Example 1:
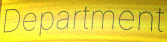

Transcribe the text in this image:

Department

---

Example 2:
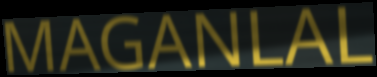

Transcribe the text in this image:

MAGANLAL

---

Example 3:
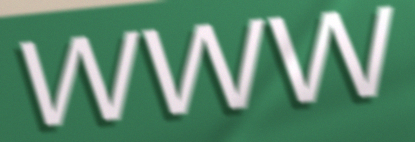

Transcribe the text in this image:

www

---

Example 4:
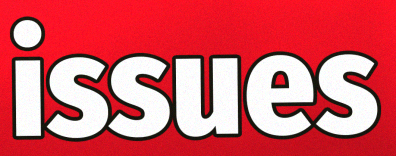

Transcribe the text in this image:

issues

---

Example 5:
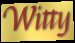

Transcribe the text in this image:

Witty